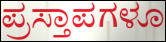
ಪ್ರಸ್ತಾಪಗಳೂ